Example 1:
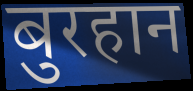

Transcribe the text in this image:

बुरहान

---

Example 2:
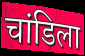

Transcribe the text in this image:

चांडिला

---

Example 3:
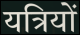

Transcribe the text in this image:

यत्रियों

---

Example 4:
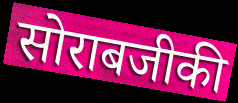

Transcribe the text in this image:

सोराबजीकी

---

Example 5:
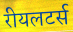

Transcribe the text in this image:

रीयलटर्स